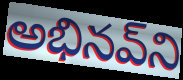
అభినవ్‌ని